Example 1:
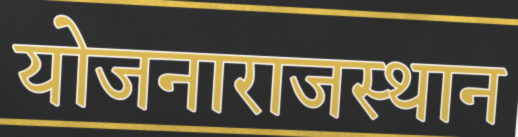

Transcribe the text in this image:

योजनाराजस्थान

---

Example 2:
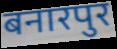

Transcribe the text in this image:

बनारपुर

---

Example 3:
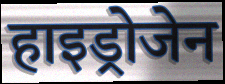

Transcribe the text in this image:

हाइड्रोजेन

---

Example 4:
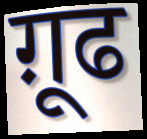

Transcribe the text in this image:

ग़ूढ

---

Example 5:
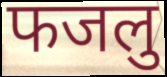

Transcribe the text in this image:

फजलु